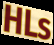
HLs